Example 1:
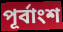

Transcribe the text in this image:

পূৰ্বাংশ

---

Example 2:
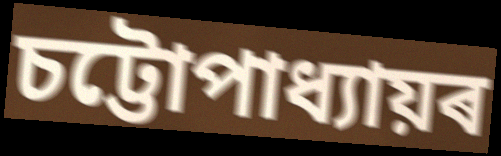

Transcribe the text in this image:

চট্টোপাধ্যায়ৰ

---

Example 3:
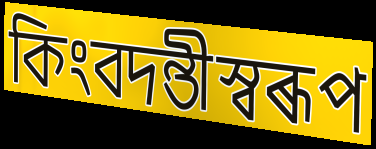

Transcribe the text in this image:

কিংবদন্তীস্বৰূপ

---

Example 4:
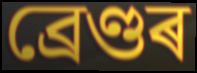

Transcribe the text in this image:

ব্ৰেণ্ডৰ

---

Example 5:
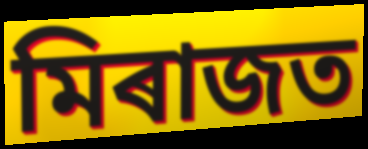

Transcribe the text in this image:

মিৰাজত